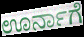
ಊರ್ನಾಗೆ